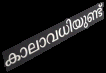
കാലാവധിയുണ്ട്